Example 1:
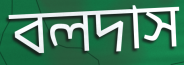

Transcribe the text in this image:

বলদাস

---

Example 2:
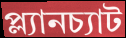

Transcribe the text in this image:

প্ল্যানচ্যাট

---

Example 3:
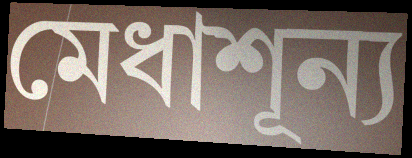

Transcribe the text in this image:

মেধাশূন্য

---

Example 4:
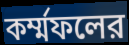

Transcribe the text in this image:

কর্ম্মফলের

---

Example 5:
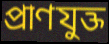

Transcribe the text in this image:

প্রাণযুক্ত